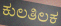
ಕುಲತಿಲಕ